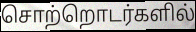
சொற்றொடர்களில்